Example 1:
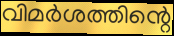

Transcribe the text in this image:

വിമർശത്തിന്റെ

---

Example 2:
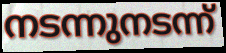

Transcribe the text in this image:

നടന്നുനടന്ന്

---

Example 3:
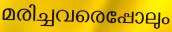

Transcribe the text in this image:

മരിച്ചവരെപ്പോലും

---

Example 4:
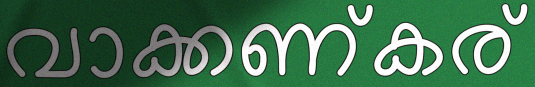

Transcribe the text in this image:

വാക്കണ്കര്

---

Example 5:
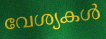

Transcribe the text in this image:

വേശ്യകൾ